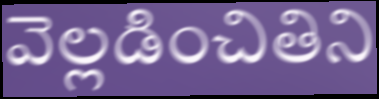
వెల్లడించితిని